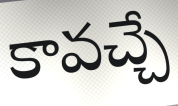
కావచ్చే